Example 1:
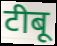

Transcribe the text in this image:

टीबू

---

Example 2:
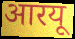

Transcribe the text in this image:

आरयू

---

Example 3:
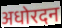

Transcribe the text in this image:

अधोरदन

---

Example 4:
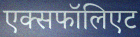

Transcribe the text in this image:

एक्सफॉलिएट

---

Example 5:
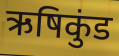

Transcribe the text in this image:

ऋषिकुंड